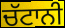
ਚੱਟਾਨੀ